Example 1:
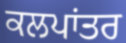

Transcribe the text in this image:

ਕਲਪਾਂਤਰ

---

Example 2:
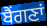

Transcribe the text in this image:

ਬੈਂਗਣਾਂ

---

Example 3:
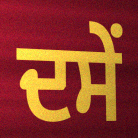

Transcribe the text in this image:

ਦਸੇਂ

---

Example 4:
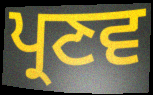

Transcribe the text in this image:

ਪ੍ਰਣਵ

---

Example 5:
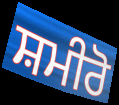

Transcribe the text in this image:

ਸ਼ਮੀਰੋ